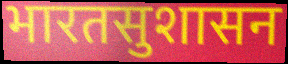
भारतसुशासन